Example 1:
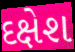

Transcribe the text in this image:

દક્ષેશ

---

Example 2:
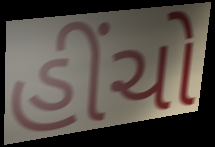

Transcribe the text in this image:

હીંચો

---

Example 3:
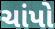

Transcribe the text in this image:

ચાંપો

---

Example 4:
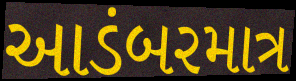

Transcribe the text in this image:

આડંબરમાત્ર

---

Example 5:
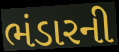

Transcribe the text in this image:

ભંડારની